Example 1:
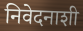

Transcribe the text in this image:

निवेदनाशी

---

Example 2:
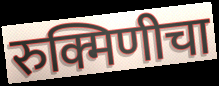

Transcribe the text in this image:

रुक्मिणीचा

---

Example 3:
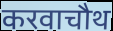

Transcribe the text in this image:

करवाचौथ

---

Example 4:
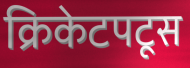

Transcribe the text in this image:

क्रिकेटपटूस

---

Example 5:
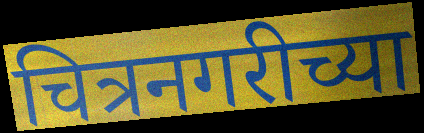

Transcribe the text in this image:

चित्रनगरीच्या